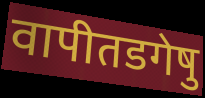
वापीतडगेषु